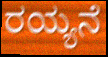
ರಯ್ಯನೆ